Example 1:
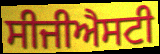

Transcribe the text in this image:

ਸੀਜੀਐਸਟੀ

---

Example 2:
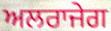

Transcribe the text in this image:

ਅਲਰਾਜੇਗ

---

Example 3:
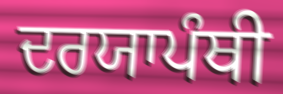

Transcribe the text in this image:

ਦਰਯਾਪੰਥੀ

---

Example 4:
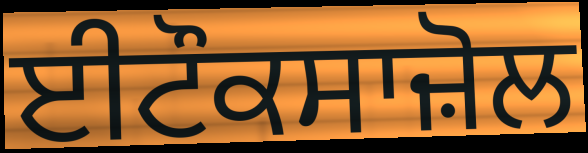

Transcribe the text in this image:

ਈਟੌਕਸਾਜ਼ੋਲ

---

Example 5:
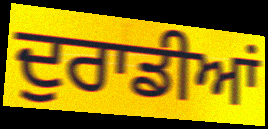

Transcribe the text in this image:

ਦੁਰਾਡੀਆਂ